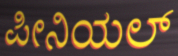
ಪೀನಿಯಲ್